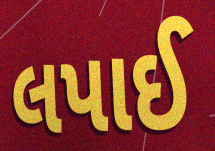
લપાઈ